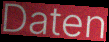
Daten